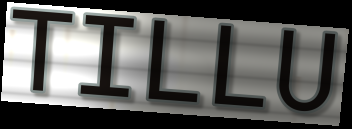
TILLU